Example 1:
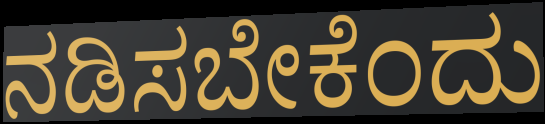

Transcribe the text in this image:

ನಡಿಸಬೇಕೆಂದು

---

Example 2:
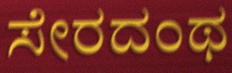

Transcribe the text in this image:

ಸೇರದಂಥ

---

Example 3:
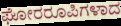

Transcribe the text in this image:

ಘೋರರೂಪಿಗಳಾದ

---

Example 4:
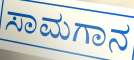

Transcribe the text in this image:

ಸಾಮಗಾನ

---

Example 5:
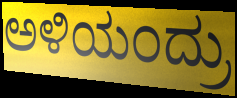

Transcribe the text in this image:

ಅಳಿಯಂದ್ರು